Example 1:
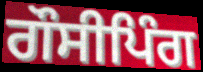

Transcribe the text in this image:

ਗੌਸੀਪਿੰਗ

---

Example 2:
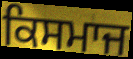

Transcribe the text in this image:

ਕਿਸਮਾਜ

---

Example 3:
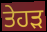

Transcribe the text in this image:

ਤੇਹੜ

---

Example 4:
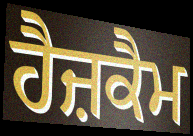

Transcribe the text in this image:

ਹੈਜ਼ਕੈਮ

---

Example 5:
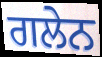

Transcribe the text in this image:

ਗਲੇਨ